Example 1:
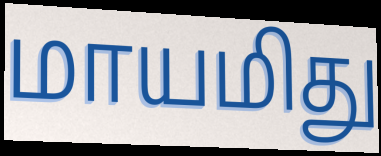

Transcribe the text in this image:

மாயமிது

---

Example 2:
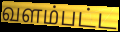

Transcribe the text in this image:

வளம்பட்ட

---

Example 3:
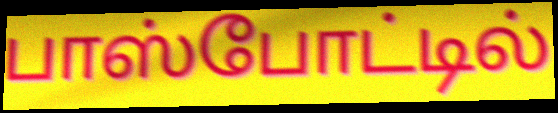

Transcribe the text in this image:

பாஸ்போட்டில்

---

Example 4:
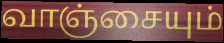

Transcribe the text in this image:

வாஞ்சையும்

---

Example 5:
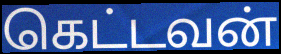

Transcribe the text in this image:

கெட்டவன்